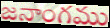
జనాంగము